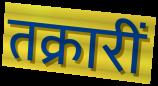
तक्रारीं